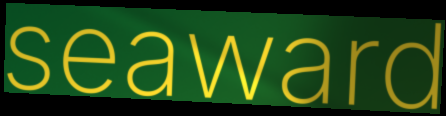
seaward